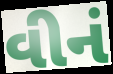
વીનં